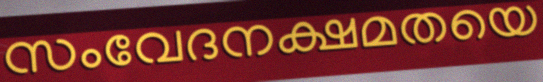
സംവേദനക്ഷമതയെ